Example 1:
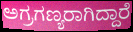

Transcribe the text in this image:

ಅಗ್ರಗಣ್ಯರಾಗಿದ್ದಾರೆ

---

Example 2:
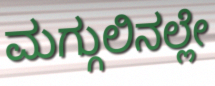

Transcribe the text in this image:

ಮಗ್ಗುಲಿನಲ್ಲೇ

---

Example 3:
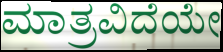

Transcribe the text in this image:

ಮಾತ್ರವಿದೆಯೇ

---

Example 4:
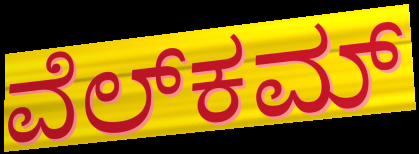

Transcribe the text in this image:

ವೆಲ್‍ಕಮ್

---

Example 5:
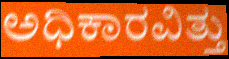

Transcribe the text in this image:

ಅಧಿಕಾರವಿತ್ತು